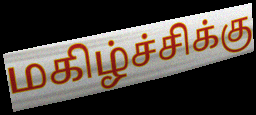
மகிழ்ச்சிக்கு